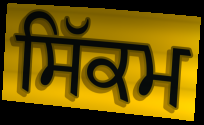
ਸਿੱਕਮ